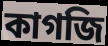
কাগজি